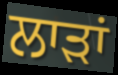
ਲਾੜਾਂ